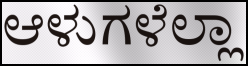
ಆಳುಗಳೆಲ್ಲಾ